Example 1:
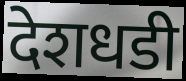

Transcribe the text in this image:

देशधडी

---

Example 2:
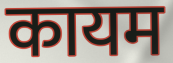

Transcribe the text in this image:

कायम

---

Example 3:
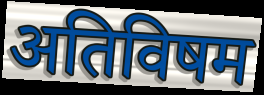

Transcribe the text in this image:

अतिविषम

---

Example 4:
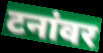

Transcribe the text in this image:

टनांवर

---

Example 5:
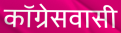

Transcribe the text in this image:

कॉग्रेसवासी